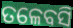
ତଳେବସି